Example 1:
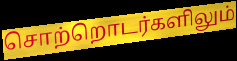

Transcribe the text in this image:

சொற்றொடர்களிலும்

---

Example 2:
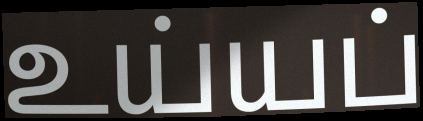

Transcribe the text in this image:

உய்யப்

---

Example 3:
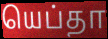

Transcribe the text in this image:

யெப்தா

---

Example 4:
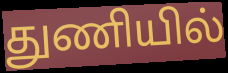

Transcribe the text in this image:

துணியில்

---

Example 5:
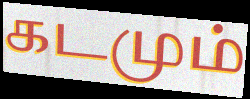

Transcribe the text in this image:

கடமும்